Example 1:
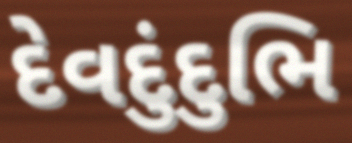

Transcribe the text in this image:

દેવદુંદુભિ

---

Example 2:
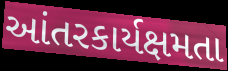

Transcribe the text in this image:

આંતરકાર્યક્ષમતા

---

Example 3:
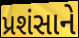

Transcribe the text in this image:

પ્રશંસાને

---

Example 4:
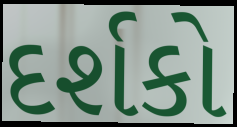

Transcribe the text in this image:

દર્શકો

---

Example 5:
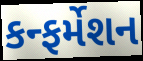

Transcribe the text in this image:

કન્ફર્મેશન